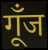
गूँज